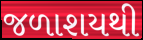
જળાશયથી